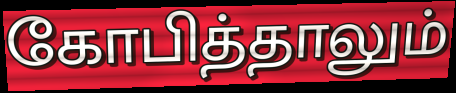
கோபித்தாலும்